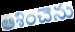
ఆశించెను